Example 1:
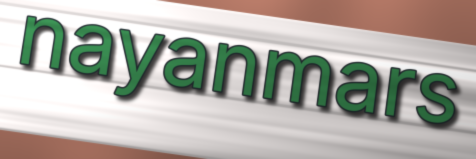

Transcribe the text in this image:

nayanmars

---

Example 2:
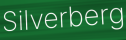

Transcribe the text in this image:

Silverberg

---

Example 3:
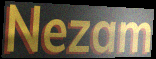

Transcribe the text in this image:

Nezam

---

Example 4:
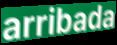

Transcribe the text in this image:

arribada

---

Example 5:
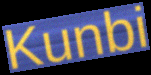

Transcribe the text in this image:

Kunbi